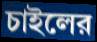
চাইলের